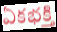
ఏకభక్తి